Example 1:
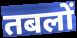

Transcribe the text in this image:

तबलों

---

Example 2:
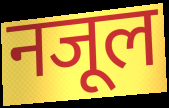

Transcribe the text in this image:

नजूल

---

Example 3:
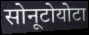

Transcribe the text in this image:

सोनूटोयोटा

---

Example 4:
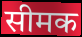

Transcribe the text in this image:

सीमक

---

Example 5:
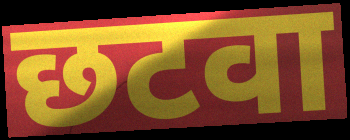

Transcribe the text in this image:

छटवा